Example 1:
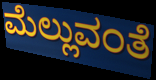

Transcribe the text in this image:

ಮೆಲ್ಲುವಂತೆ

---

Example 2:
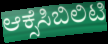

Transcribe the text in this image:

ಆಕ್ಸೆಸಿಬಿಲಿಟಿ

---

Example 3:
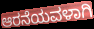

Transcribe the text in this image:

ಆರನೆಯವಳಾಗಿ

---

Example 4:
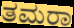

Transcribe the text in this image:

ತಮರಾ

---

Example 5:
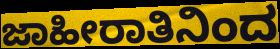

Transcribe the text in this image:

ಜಾಹೀರಾತಿನಿಂದ